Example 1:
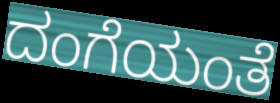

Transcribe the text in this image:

ದಂಗೆಯಂತೆ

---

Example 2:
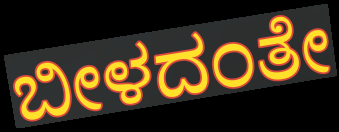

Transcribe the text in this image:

ಬೀಳದಂತೇ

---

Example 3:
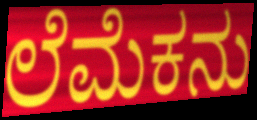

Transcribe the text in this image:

ಲೆಮೆಕನು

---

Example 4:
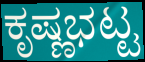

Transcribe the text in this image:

ಕೃಷ್ಣಭಟ್ಟ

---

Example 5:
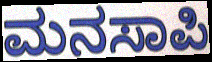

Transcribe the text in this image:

ಮನಸಾಪಿ